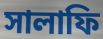
সালাফি